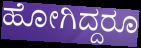
ಹೋಗಿದ್ದರೂ